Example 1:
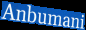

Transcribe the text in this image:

Anbumani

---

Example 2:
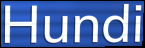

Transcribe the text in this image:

Hundi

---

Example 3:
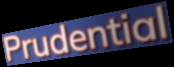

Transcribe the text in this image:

Prudential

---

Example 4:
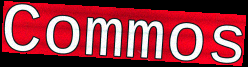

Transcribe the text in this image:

Commos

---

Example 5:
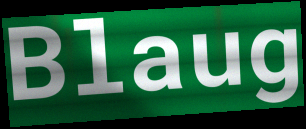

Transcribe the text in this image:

Blaug